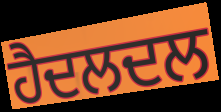
ਹੈਦਲਦਲ